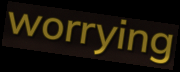
worrying